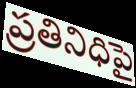
ప్రతినిధిపై